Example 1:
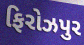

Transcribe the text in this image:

ફિરોઝપુર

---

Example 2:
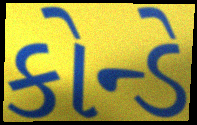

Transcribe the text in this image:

કોન્ડે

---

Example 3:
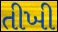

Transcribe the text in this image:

તીખી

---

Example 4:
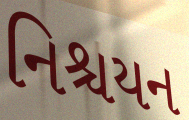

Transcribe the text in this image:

નિશ્ચયન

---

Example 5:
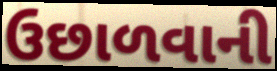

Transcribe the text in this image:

ઉછાળવાની